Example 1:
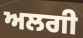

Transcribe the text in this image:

ਅਲਗੀ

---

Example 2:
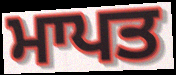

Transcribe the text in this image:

ਮਾਪਤ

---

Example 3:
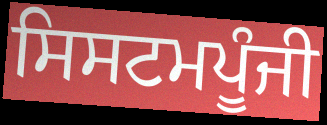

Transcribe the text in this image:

ਸਿਸਟਮਪੂੰਜੀ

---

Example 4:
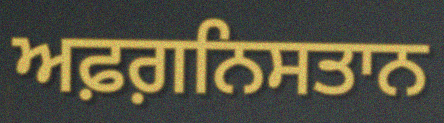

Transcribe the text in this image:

ਅਫ਼ਗ਼ਨਿਸਤਾਨ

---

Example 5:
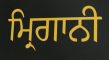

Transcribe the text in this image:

ਮ੍ਰਿਗਾਨੀ